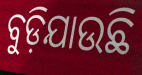
ବୁଡ଼ିଯାଉଛି